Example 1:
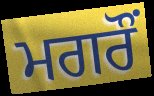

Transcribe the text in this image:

ਮਗਰੌਂ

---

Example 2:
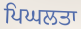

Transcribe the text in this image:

ਪਿਘਲਤਾ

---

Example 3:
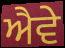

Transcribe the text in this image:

ਐਵੇ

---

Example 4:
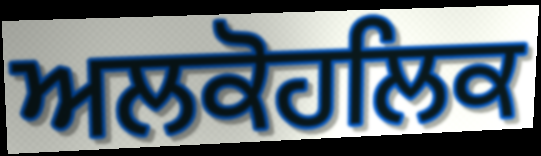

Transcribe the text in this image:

ਅਲਕੋਹਲਿਕ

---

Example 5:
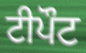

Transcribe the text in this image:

ਟੀਪੌਟ